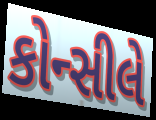
કોન્સીલે